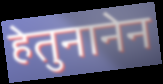
हेतुनानेन